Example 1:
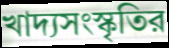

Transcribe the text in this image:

খাদ্যসংস্কৃতির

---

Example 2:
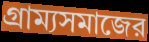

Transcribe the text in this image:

গ্রাম্যসমাজের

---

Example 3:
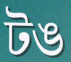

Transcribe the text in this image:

টঙ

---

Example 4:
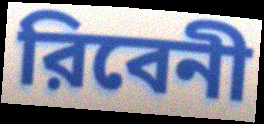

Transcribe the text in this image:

রিবেনী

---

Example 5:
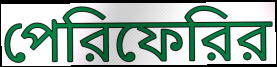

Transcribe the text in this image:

পেরিফেরির